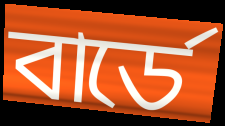
বার্ডে